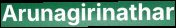
Arunagirinathar